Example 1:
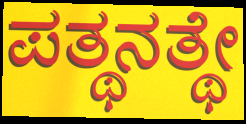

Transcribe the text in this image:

ಪತ್ಥನತ್ಥೇ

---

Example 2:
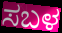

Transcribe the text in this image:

ಸಬಳ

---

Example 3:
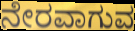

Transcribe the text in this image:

ನೇರವಾಗುವ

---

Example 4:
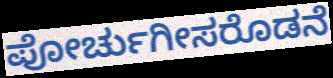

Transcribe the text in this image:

ಪೋರ್ಚುಗೀಸರೊಡನೆ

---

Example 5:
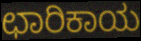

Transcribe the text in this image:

ಛಾರಿಕಾಯ